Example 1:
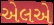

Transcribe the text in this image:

એલએ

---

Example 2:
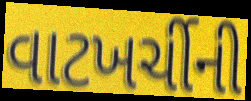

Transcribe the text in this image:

વાટખર્ચીની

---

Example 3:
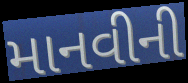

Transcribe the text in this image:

માનવીની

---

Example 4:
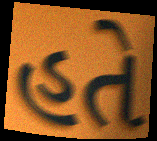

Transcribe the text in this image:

હતે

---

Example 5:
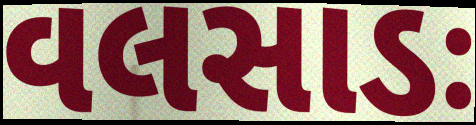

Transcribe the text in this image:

વલસાડઃ